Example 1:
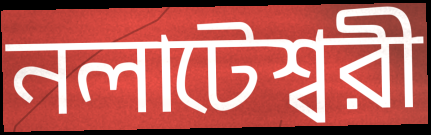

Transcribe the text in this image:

নলাটেশ্বরী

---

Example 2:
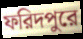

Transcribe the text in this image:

ফরিদপুরে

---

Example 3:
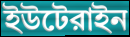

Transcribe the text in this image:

ইউটেরাইন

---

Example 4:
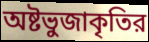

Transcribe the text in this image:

অষ্টভুজাকৃতির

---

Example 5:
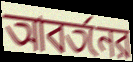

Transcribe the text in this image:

আবর্তনের